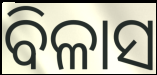
ବିଳାସ